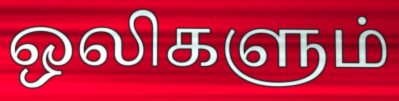
ஒலிகளும்